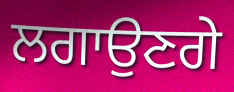
ਲਗਾਉਣਗੇ